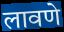
लावणे